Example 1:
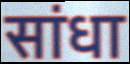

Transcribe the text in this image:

सांधा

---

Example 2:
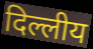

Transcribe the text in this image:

दिल्लीय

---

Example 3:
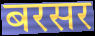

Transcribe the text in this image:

बरसर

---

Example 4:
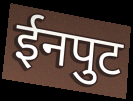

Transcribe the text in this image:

ईनपुट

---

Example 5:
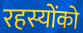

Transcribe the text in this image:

रहस्योंको